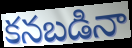
కనబడినా